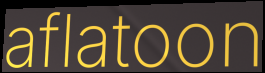
aflatoon